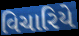
વિચારિયે